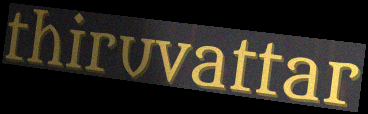
thiruvattar